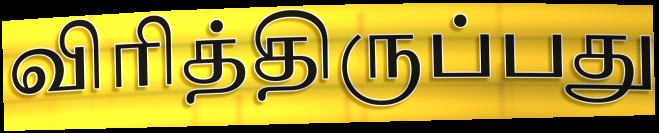
விரித்திருப்பது